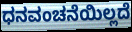
ಧನವಂಚನೆಯಿಲ್ಲದೆ